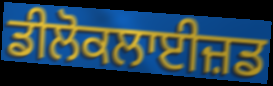
ਡੀਲੋਕਲਾਈਜ਼ਡ